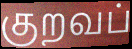
குறவப்